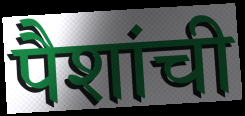
पैशांची